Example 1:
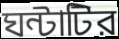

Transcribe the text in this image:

ঘন্টাটির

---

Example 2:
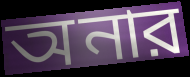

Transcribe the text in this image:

অনার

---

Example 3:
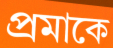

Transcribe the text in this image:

প্রমাকে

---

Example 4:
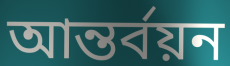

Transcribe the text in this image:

আন্তর্বয়ন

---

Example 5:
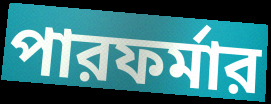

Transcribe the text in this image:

পারফর্মার